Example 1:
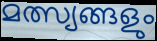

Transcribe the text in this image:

മത്സ്യങ്ങളും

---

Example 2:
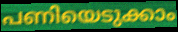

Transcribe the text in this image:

പണിയെടുക്കാം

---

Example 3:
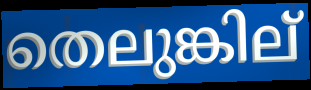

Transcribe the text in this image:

തെലുങ്കില്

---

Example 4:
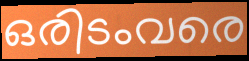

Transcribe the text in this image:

ഒരിടംവരെ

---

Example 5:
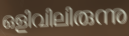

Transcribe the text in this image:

ഒളിവിലിരുന്നു